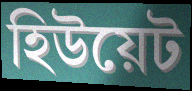
হিউয়েট